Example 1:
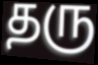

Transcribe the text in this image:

தரு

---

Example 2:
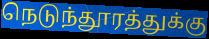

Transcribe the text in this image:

நெடுந்தூரத்துக்கு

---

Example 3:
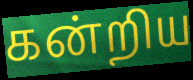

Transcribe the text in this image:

கன்றிய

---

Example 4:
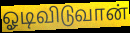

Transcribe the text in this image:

ஓடிவிடுவான்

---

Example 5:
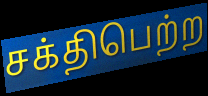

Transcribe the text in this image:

சக்திபெற்ற